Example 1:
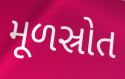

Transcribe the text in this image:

મૂળસ્રોત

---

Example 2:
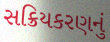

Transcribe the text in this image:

સક્રિયકરણનું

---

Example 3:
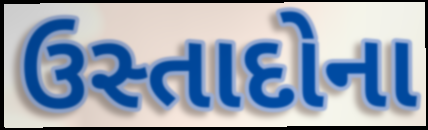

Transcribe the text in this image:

ઉસ્તાદોના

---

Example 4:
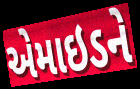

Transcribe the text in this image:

એમાઇડને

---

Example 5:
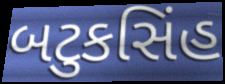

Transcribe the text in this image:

બટુકસિંહ